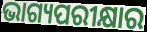
ଭାଗ୍ୟପରୀକ୍ଷାର